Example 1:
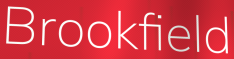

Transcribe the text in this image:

Brookfield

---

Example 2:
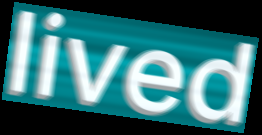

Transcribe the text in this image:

lived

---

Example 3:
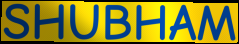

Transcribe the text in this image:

SHUBHAM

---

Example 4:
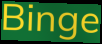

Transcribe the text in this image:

Binge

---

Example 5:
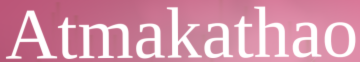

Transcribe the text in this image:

Atmakathao